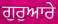
ਗੁਰੁਆਰੇ